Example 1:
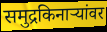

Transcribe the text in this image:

समुद्रकिनाऱ्यांवर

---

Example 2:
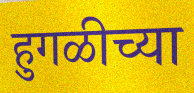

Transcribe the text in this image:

हुगळीच्या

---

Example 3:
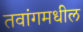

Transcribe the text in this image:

तवांगमधील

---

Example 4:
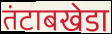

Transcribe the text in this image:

तंटाबखेडा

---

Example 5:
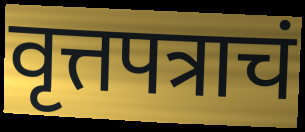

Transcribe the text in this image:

वृत्तपत्राचं